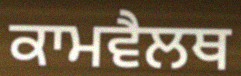
ਕਾਮਵੈਲਥ